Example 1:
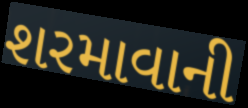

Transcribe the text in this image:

શરમાવાની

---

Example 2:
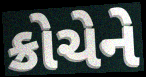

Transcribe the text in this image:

ક્રોચેને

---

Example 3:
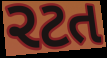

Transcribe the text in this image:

રટત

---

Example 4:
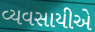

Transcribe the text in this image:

વ્યવસાયીએ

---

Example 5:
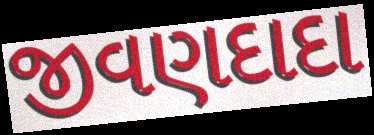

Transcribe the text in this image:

જીવણદાદા